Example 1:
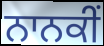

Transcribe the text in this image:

ਨਾਨਕੀਂ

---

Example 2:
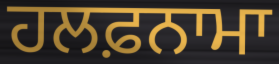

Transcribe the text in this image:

ਹਲਫ਼ਨਾਮਾ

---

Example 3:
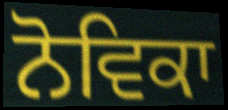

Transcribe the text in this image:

ਨੋਵਿਕਾ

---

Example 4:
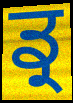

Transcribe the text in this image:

ਡ੍ਰ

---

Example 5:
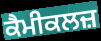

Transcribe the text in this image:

ਕੈਮੀਕਲਜ਼